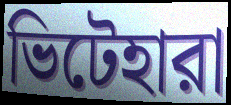
ভিটেহারা